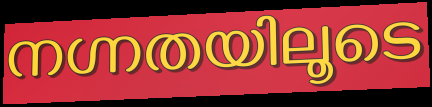
നഗ്നതയിലൂടെ